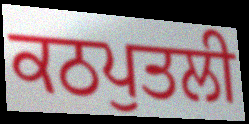
ਕਠਪੁਤਲੀ